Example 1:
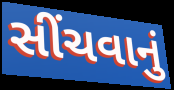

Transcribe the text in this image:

સીંચવાનું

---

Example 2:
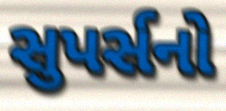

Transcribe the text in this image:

સુપર્સનો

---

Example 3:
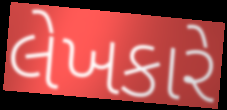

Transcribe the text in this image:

લેખકારે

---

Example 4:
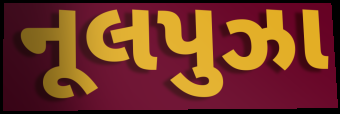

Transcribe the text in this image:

નૂલપુઝા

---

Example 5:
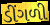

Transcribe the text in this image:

ડીંગળી